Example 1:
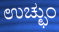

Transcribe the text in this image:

ಉಚ್ಛುಂ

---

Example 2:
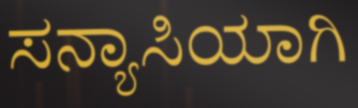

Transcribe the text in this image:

ಸನ್ಯಾಸಿಯಾಗಿ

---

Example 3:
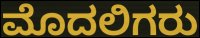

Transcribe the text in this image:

ಮೊದಲಿಗರು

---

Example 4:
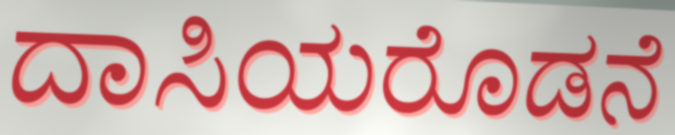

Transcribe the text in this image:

ದಾಸಿಯರೊಡನೆ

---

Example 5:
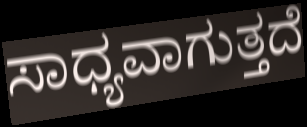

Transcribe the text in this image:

ಸಾಧ್ಯವಾಗುತ್ತದೆ